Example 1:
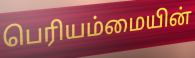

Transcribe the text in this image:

பெரியம்மையின்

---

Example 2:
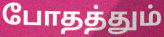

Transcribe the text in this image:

போதத்தும்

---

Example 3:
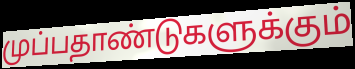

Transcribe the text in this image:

முப்பதாண்டுகளுக்கும்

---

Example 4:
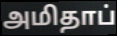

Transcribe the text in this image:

அமிதாப்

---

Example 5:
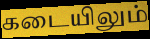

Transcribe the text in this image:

கடையிலும்